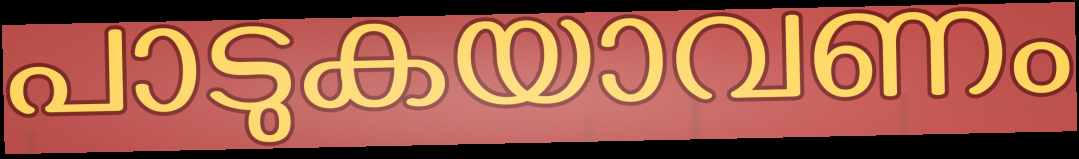
പാടുകയാവണം